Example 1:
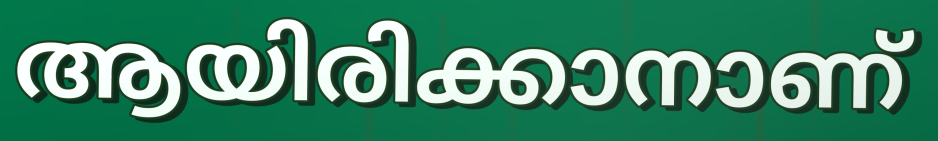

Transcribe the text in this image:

ആയിരിക്കാനാണ്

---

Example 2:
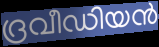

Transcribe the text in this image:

ദ്രവീഡിയൻ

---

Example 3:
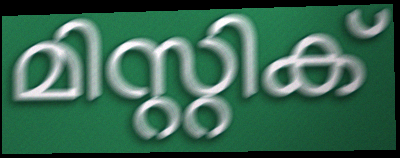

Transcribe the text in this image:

മിസ്റ്റിക്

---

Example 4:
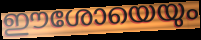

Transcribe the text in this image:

ഈശോയെയും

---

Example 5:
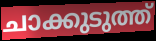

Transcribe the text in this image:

ചാക്കുടുത്ത്